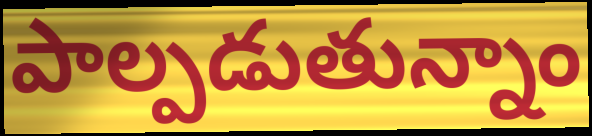
పాల్పడుతున్నాం